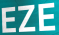
EZE